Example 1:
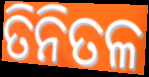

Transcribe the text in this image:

ତିନିତଳ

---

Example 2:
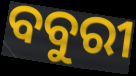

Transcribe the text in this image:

ବବୁରୀ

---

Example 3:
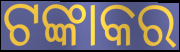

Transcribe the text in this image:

ଟଙ୍କାକର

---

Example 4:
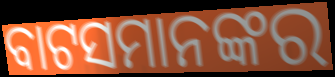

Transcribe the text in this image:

ବାଟସମାନଙ୍କର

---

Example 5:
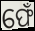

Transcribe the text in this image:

ଫେଁ